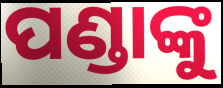
ପଣ୍ଡାଙ୍କୁ